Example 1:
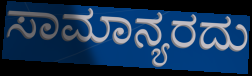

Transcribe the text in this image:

ಸಾಮಾನ್ಯರದು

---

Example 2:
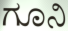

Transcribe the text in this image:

ಗೂನಿ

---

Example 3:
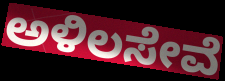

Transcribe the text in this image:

ಅಳಿಲಸೇವೆ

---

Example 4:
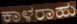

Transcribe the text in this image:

ಕಾಳರಾಹು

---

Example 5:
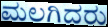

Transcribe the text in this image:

ಮಲಗಿದರು